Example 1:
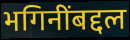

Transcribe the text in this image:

भगिनींबद्दल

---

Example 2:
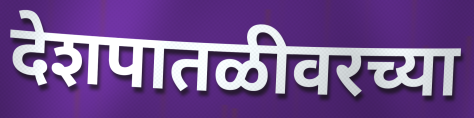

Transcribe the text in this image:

देशपातळीवरच्या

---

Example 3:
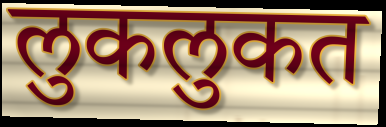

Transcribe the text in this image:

लुकलुकत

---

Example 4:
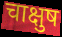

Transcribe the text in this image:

चाक्षुष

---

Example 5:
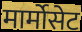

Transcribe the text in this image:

मार्मोसेट